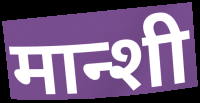
मान्शी